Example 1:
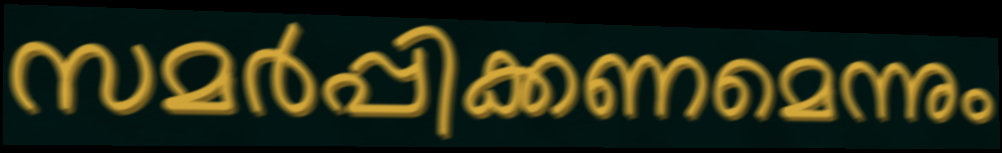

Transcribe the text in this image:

സമർപ്പിക്കണമെന്നും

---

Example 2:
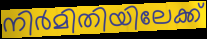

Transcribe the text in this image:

നിർമിതിയിലേക്ക്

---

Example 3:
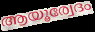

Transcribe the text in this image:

ആയൂര്വേദം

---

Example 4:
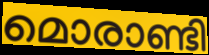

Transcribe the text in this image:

മൊരാണ്ടി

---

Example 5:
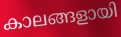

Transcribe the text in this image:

കാലങ്ങളായി